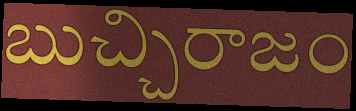
బుచ్చిరాజం